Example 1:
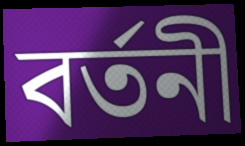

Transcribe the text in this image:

বর্তনী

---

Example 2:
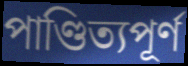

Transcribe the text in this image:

পাণ্ডিত্যপূর্ণ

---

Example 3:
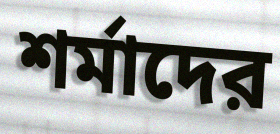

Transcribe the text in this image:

শর্মাদের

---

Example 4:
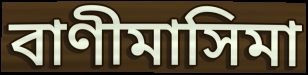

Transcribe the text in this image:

বাণীমাসিমা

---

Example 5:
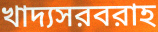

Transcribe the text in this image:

খাদ্যসরবরাহ